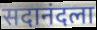
सदानंदला